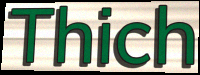
Thich